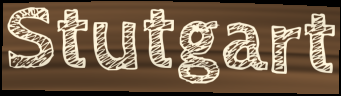
Stutgart